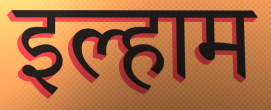
इल्हाम